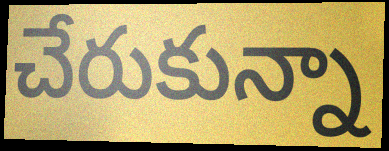
చేరుకున్నా